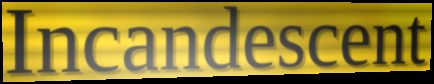
Incandescent